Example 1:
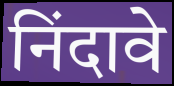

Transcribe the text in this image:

निंदावे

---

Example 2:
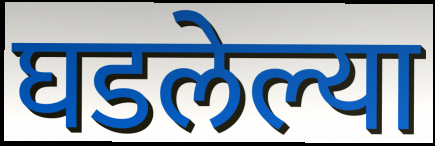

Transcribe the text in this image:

घडलेल्या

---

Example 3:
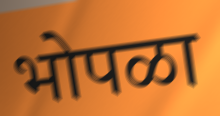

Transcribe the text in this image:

भोपळा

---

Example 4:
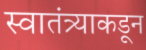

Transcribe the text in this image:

स्वातंत्र्याकडून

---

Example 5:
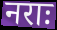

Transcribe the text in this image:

नराः